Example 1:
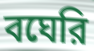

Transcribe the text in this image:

বঘেরি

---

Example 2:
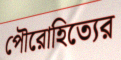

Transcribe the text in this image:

পৌরোহিত্যের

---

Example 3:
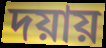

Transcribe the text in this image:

দয়ায়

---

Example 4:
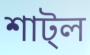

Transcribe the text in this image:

শাট্ল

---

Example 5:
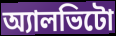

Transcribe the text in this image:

অ্যালভিটো